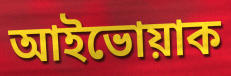
আইভোয়াক